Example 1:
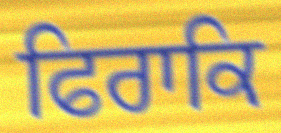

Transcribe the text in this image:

ਫਿਰਾਕਿ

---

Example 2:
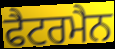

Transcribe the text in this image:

ਫੈਟਰਮੈਨ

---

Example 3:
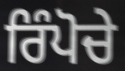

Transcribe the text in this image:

ਰਿੰਪੋਚੇ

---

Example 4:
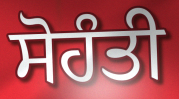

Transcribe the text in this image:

ਸੋਹੰਤੀ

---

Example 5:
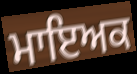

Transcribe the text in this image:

ਮਾਇਅਕ